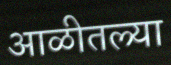
आळीतल्या